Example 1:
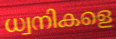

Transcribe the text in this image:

ധ്വനികളെ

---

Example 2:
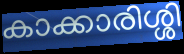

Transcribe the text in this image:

കാക്കാരിശ്ശി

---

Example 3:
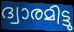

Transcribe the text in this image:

ദ്വാരമിട്ടു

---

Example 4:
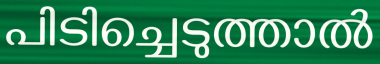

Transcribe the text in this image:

പിടിച്ചെടുത്താൽ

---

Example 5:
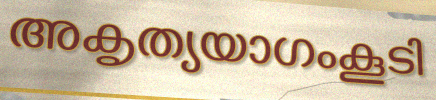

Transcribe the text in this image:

അകൃത്യയാഗംകൂടി